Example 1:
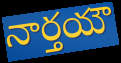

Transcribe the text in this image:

నార్తయౌ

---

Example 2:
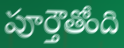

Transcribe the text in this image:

పూర్తౌతోంది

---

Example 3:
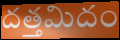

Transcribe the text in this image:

దత్తమిదం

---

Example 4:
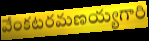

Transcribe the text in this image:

వేంకటరమణయ్యగారి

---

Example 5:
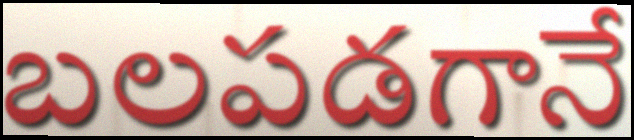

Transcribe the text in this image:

బలపడగానే